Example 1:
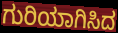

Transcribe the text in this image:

ಗುರಿಯಾಗಿಸಿದ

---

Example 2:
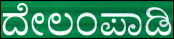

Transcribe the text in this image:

ದೇಲಂಪಾಡಿ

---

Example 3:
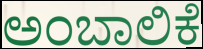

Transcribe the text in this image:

ಅಂಬಾಲಿಕೆ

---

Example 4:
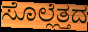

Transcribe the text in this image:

ಸೊಲ್ಲೆತ್ತದ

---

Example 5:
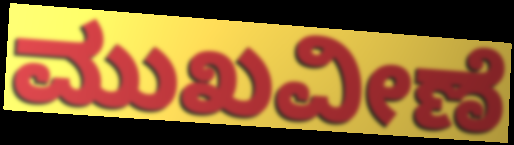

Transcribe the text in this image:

ಮುಖವೀಣೆ